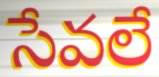
సేవలే